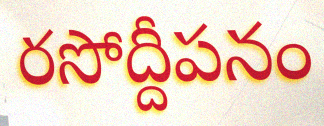
రసోద్దీపనం